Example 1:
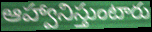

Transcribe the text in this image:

ఆహ్వానిస్తుంటారు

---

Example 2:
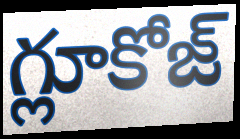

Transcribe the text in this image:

గ్లూకోజ్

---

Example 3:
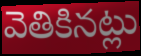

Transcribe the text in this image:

వెతికినట్లు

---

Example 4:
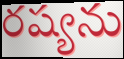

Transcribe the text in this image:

రష్యను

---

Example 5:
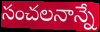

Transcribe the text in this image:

సంచలనాన్నే